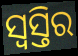
ସ୍ଵସ୍ତିର